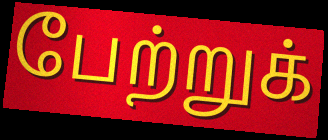
பேற்றுக்